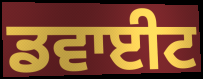
ਡਵਾਈਟ